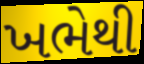
ખભેથી